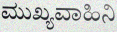
ಮುಖ್ಯವಾಹಿನಿ